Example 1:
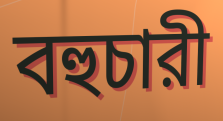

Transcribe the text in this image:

বহুচারী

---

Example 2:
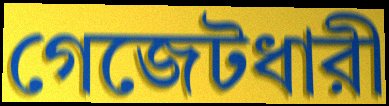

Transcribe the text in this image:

গেজেটধারী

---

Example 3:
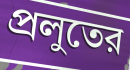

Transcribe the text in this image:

প্রলুতের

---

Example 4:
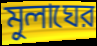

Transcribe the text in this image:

মুলাঘের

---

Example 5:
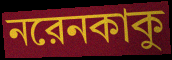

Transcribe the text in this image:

নরেনকাকু